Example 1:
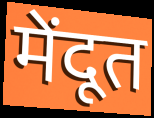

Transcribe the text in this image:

मेंदूत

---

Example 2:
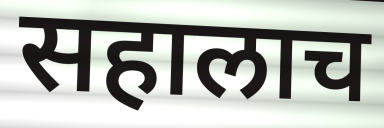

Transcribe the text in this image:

सहालाच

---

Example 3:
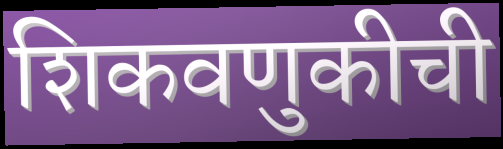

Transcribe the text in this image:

शिकवणुकीची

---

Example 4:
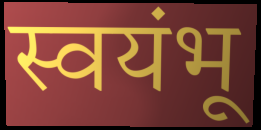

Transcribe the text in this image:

स्वयंभू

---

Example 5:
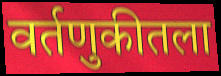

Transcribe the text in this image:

वर्तणुकीतला